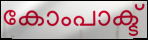
കോംപാക്ട്